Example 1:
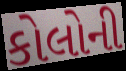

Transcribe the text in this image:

કોલોની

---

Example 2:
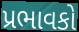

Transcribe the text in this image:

પ્રભાવકો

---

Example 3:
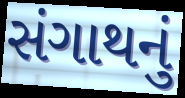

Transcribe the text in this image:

સંગાથનું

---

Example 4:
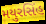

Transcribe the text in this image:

મયુરસિંહ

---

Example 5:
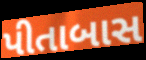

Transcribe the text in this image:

પીતાબાસ